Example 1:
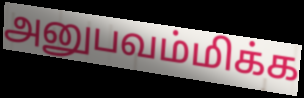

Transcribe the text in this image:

அனுபவம்மிக்க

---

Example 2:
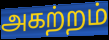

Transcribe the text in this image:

அகற்றம்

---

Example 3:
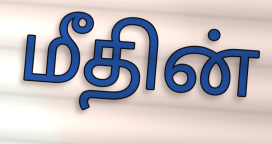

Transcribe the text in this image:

மீதின்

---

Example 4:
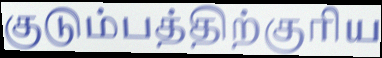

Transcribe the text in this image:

குடும்பத்திற்குரிய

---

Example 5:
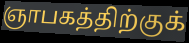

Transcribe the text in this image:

ஞாபகத்திற்குக்